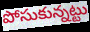
పోసుకున్నట్టు